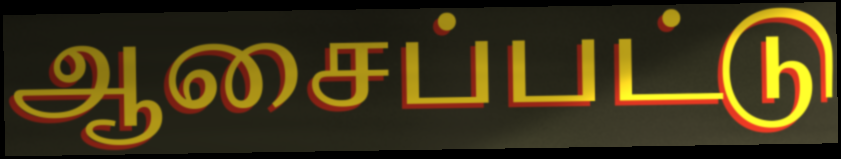
ஆசைப்பட்டு